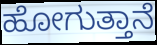
ಹೋಗುತ್ತಾನೆ